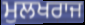
ਮੁਲਖਰਾਜ